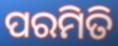
ପରମିତି